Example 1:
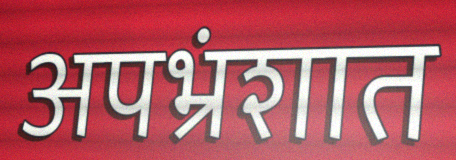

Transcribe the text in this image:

अपभ्रंशात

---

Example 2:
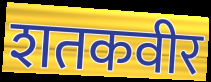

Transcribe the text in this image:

शतकवीर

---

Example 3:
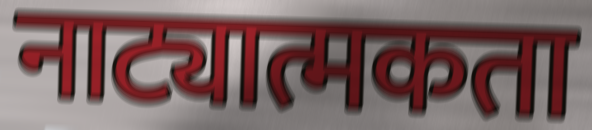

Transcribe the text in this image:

नाट्यात्मकता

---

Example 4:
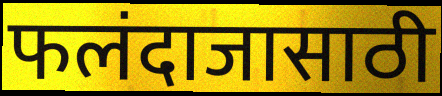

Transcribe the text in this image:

फलंदाजासाठी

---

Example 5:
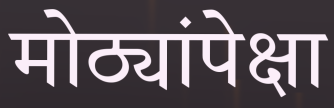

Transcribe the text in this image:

मोठ्यांपेक्षा